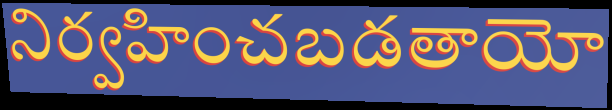
నిర్వహించబడతాయో